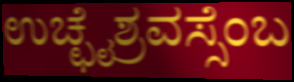
ಉಚ್ಛೈಶ್ರವಸ್ಸೆಂಬ